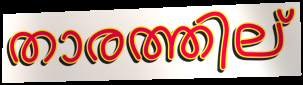
താരത്തില്